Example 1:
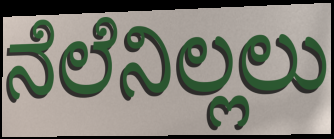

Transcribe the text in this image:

ನೆಲೆನಿಲ್ಲಲು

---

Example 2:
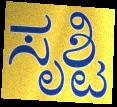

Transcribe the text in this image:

ಸೃಶ್ಟಿ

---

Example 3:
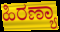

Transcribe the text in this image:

ಹಿರಣ್ಯಾ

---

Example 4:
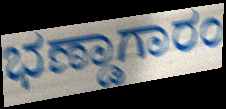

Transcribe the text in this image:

ಭಣ್ಡಾಗಾರಂ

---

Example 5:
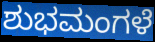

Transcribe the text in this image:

ಶುಭಮಂಗಳೆ